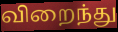
விறைந்து